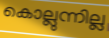
കൊല്ലുന്നില്ല